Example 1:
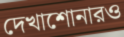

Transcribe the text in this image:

দেখাশোনারও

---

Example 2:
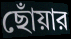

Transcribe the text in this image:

ছোঁয়ার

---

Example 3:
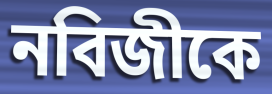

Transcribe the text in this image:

নবিজীকে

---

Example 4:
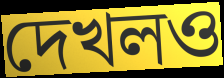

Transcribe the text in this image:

দেখলও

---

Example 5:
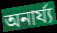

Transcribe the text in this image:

অনার্য্য